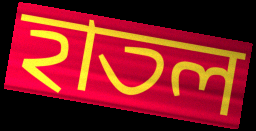
হাতল